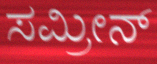
ಸಮ್ರೀನ್